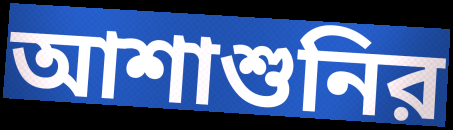
আশাশুনির